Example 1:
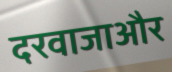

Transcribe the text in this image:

दरवाजाऔर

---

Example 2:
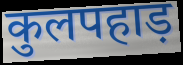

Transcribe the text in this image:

कुलपहाड़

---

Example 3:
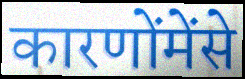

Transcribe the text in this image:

कारणोंमेंसे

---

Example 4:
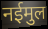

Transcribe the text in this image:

नईमुल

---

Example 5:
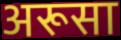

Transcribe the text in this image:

अरूसा